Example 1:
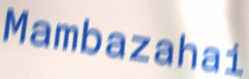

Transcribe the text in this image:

Mambazahai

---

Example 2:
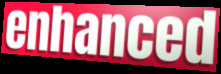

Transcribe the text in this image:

enhanced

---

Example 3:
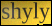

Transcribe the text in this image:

shyly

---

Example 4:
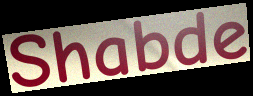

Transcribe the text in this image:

Shabde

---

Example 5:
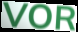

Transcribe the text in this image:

VOR